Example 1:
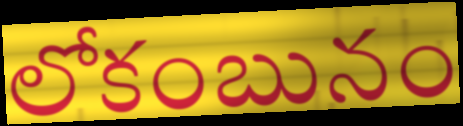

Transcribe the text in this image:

లోకంబునం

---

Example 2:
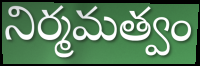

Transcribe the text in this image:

నిర్మమత్వం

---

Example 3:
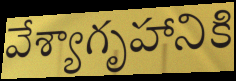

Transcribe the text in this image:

వేశ్యాగృహానికి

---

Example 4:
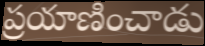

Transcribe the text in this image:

ప్రయాణించాడు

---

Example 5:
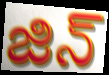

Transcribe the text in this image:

జిన్